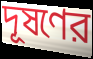
দূষণের